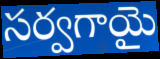
సర్వగాయై